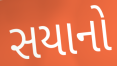
સયાનો